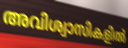
അവിശ്വാസികളിൽ